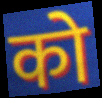
को